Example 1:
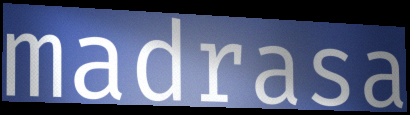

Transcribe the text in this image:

madrasa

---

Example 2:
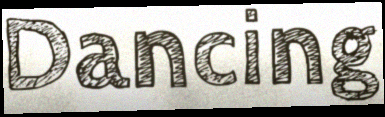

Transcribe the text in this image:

Dancing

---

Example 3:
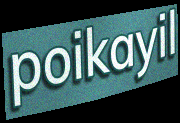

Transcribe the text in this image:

poikayil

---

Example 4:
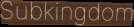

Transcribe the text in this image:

Subkingdom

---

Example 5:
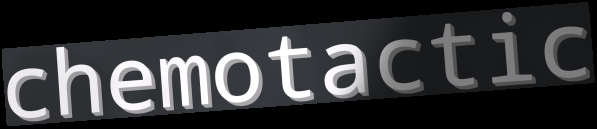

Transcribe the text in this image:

chemotactic